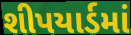
શીપયાર્ડમાં